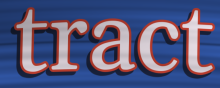
tract